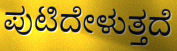
ಪುಟಿದೇಳುತ್ತದೆ